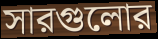
সারগুলোর